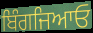
ਬਿੰਗਜਿਆਓ